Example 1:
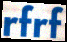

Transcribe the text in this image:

rfrf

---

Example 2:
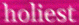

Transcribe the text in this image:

holiest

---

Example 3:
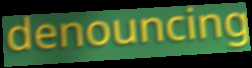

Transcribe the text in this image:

denouncing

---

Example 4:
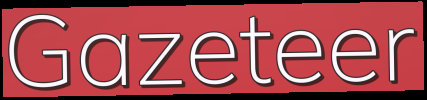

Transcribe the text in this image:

Gazeteer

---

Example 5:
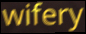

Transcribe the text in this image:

wifery